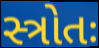
સ્ત્રોતઃ